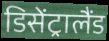
डिसेंट्रालैंड